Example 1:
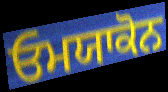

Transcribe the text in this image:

ਓਮਯਾਕੋਨ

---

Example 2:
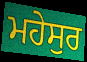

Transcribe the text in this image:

ਮਹੇਸੁਰ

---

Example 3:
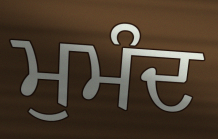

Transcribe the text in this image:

ਮੁਮੰਦ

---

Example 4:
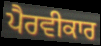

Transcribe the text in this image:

ਪੈਰਵੀਕਾਰ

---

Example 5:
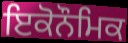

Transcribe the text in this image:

ਇਕੋਨੌਮਿਕ